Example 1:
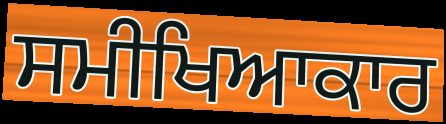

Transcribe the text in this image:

ਸਮੀਖਿਆਕਾਰ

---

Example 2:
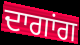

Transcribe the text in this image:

ਦਾਗਾਂਗ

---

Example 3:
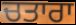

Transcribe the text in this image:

ਚਤਾਰਾ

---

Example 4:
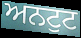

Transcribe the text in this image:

ਅਨਟੁਟ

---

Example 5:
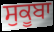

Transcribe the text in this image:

ਸੁਕੂਬਾ